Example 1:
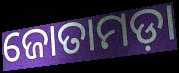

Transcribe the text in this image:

ଜୋତାମଡ଼ା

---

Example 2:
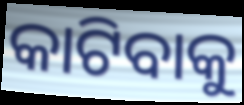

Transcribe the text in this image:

କାଟିବାକୁ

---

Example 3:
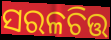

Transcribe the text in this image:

ସରଳଚିତ୍ତ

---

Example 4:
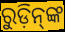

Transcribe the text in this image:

ରୁଡ଼ିନ୍‌ଙ୍କ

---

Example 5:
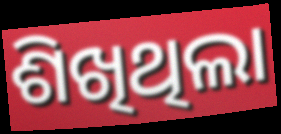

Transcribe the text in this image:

ଶିଖିଥିଲା